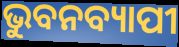
ଭୁବନବ୍ୟାପୀ